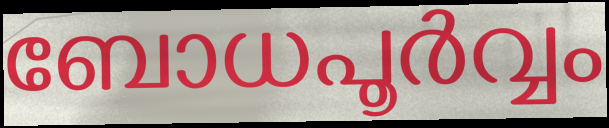
ബോധപൂർവ്വം